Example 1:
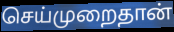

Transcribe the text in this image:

செய்முறைதான்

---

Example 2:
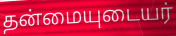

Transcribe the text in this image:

தன்மையுடையர்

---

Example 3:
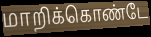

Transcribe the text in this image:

மாறிக்கொண்டே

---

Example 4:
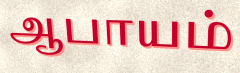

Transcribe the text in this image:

ஆபாயம்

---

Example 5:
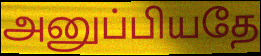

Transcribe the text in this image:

அனுப்பியதே